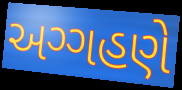
અગ્ગહણે